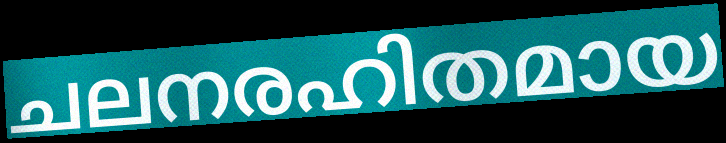
ചലനരഹിതമായ